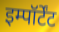
इम्पॉर्टेंट